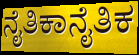
ನೈತಿಕಾನೈತಿಕ